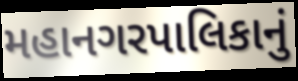
મહાનગરપાલિકાનું